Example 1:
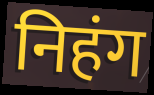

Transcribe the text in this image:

निहंग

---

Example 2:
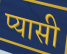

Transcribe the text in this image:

प्यासी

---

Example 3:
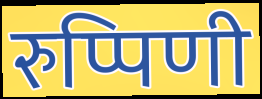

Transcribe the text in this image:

रुप्पिणी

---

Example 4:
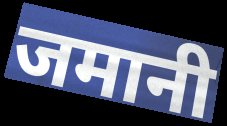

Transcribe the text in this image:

जमानी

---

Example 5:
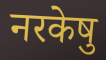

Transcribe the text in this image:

नरकेषु